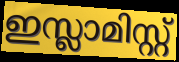
ഇസ്ലാമിസ്റ്റ്